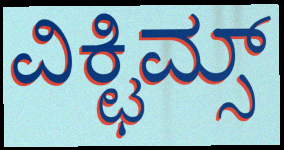
ವಿಕ್ಟಿಮ್ಸ್